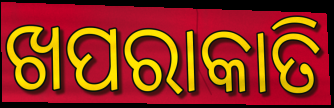
ଖପରାକାତି